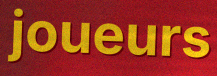
joueurs